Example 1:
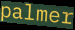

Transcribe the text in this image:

palmer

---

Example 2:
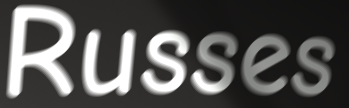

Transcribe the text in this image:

Russes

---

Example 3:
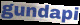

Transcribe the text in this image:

gundapi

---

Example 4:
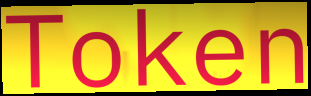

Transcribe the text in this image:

Token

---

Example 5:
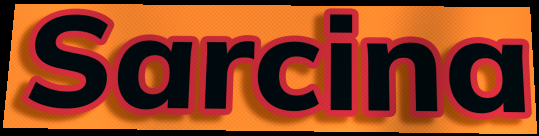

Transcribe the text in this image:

Sarcina